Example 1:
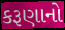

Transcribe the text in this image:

કરૂણાનો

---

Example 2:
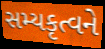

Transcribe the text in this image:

સમ્યકૃત્વને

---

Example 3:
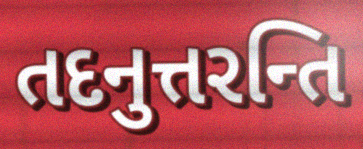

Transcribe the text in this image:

તદનુત્તરન્તિ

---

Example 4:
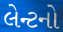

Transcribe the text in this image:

લેન્ટનો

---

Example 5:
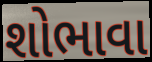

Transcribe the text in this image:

શોભાવા